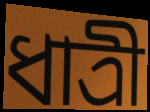
ধাত্ৰী